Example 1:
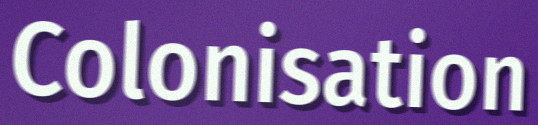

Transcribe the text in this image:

Colonisation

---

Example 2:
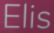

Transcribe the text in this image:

Elis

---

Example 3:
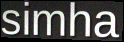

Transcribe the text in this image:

simha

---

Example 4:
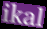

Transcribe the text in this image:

ikal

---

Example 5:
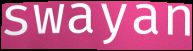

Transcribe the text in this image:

swayan